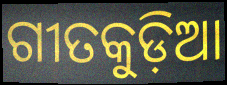
ଗୀତକୁଡ଼ିଆ